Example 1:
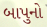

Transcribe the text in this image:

બાપુનો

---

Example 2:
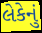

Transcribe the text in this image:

લેકેનું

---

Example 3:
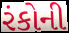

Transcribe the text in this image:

રંકોની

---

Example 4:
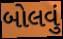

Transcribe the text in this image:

બોલવું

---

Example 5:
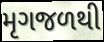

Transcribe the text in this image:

મૃગજળથી